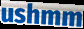
ushmm